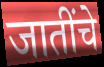
जातींचे